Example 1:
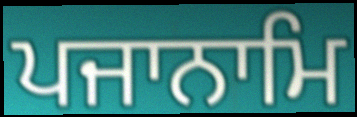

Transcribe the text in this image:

ਪਜਾਨਾਮਿ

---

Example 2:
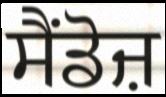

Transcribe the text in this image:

ਸੈਂਡੋਜ਼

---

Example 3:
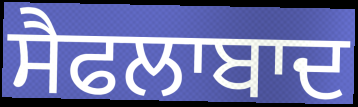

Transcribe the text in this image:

ਸੈਫਲਾਬਾਦ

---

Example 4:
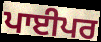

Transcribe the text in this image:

ਪਾਈਪਰ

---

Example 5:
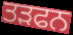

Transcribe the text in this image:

ਤੜਫਨ